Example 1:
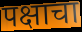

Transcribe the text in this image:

पक्षाचा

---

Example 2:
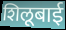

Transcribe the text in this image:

शिलूबाई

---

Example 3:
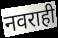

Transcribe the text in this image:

नवराही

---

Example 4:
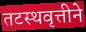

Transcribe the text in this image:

तटस्थवृत्तीने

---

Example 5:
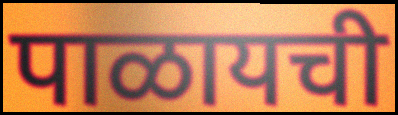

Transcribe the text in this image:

पाळायची